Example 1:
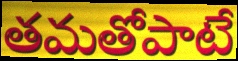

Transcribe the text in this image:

తమతోపాటే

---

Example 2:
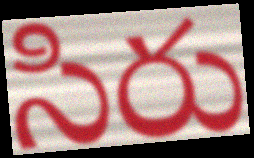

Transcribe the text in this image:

సిరు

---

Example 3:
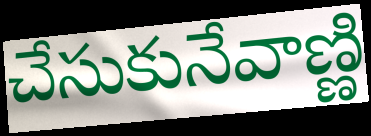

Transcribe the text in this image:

చేసుకునేవాణ్ణి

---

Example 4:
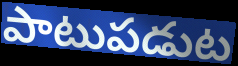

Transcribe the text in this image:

పాటుపడుట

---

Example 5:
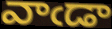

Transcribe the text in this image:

వాఁడా